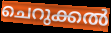
ചെറുക്കൽ